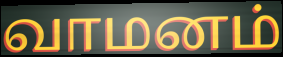
வாமனம்